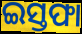
ଇସ୍ତଫା